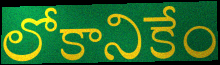
లోకానికేం